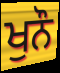
ਖੁਨੌ